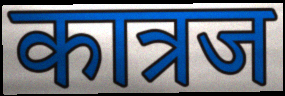
कात्रज